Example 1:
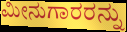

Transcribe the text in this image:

ಮೀನುಗಾರರನ್ನು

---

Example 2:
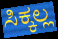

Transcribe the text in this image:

ಸಿಕ್ಕಲ್ಲ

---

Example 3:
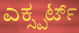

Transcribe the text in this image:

ಎಕ್ಸ್ಪರ್ಟ್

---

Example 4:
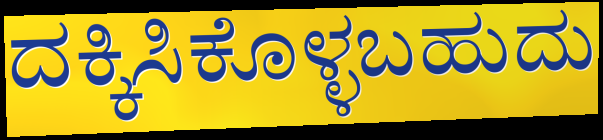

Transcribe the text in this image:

ದಕ್ಕಿಸಿಕೊಳ್ಳಬಹುದು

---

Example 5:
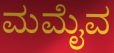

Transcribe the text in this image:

ಮಮೈವ